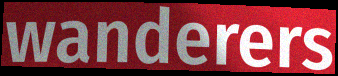
wanderers